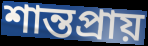
শান্তপ্রায়